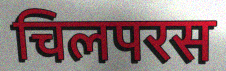
चिलपरस